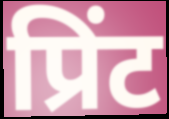
प्रिंट